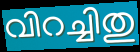
വിറച്ചിതു